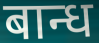
बान्ध